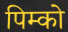
पिम्को